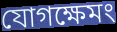
যোগক্ষেমং